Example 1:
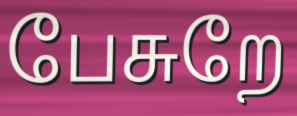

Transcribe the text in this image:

பேசுறே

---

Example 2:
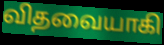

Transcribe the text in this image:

விதவையாகி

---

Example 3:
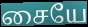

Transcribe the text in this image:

சையே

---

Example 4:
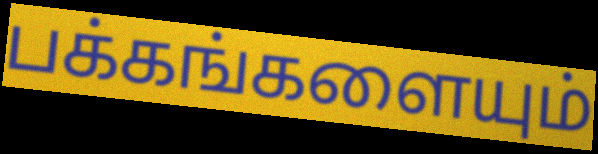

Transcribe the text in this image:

பக்கங்களையும்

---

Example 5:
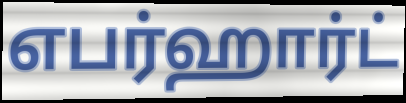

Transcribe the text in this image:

எபர்ஹார்ட்